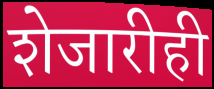
शेजारीही